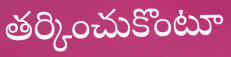
తర్కించుకొంటూ